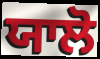
ਯਾਲੋ